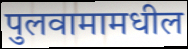
पुलवामामधील